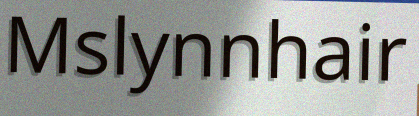
Mslynnhair